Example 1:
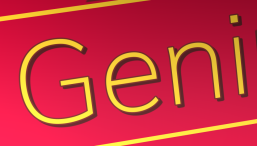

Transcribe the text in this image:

Geni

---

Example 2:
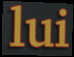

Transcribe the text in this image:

lui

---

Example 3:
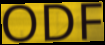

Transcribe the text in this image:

ODF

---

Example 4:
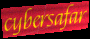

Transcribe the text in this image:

cybersafar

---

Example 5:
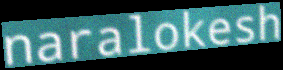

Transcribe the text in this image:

naralokesh